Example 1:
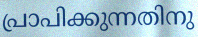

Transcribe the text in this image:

പ്രാപിക്കുന്നതിനു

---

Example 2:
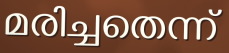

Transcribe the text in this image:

മരിച്ചതെന്ന്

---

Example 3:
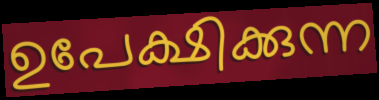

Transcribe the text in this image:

ഉപേക്ഷിക്കുന്ന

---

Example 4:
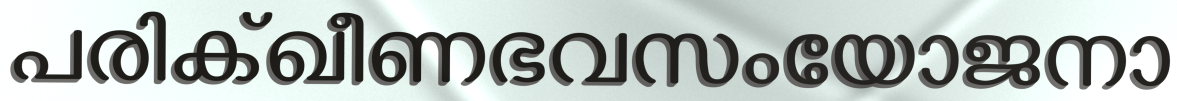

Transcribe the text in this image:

പരിക്ഖീണഭവസംയോജനാ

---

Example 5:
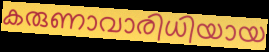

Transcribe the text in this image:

കരുണാവാരിധിയായ